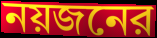
নয়জনের